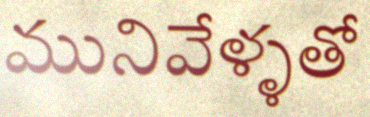
మునివేళ్ళతో